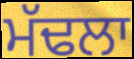
ਮੱਢਲਾ